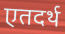
एतदर्थ